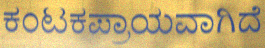
ಕಂಟಕಪ್ರಾಯವಾಗಿದೆ